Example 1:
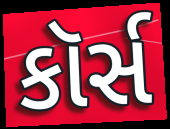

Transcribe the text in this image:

કૉર્સ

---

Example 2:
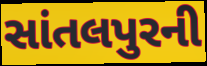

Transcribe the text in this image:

સાંતલપુરની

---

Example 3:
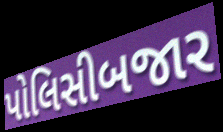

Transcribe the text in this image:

પોલિસીબજાર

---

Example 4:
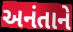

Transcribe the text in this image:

અનંતાને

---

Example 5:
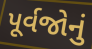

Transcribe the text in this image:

પૂર્વજોનું